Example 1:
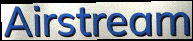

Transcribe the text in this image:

Airstream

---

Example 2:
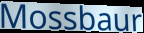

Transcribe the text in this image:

Mossbaur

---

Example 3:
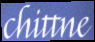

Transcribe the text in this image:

chittne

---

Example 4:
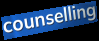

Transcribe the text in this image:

counselling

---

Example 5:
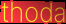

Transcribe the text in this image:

thoda